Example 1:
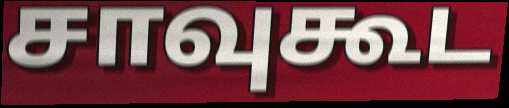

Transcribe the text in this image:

சாவுகூட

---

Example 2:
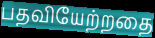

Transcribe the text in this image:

பதவியேற்றதை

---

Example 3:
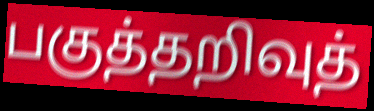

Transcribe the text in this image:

பகுத்தறிவுத்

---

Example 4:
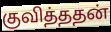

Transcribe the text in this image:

குவித்ததன்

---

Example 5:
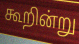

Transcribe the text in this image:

கூறின்று